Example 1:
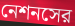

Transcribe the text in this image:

নেশনসের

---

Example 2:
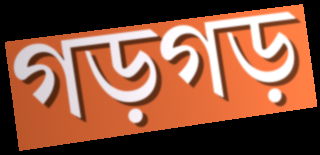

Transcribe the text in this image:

গড়গড়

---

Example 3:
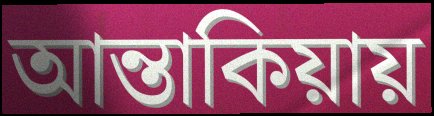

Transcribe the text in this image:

আন্তাকিয়ায়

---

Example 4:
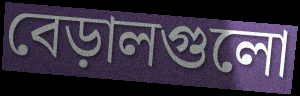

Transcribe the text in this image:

বেড়ালগুলো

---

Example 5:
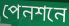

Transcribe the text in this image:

পেনশনে